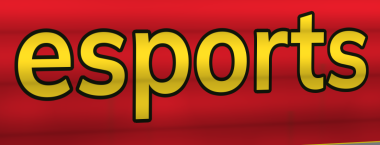
esports